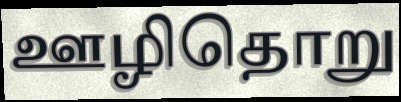
ஊழிதொறு